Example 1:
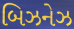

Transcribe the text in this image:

બિઝનેઝ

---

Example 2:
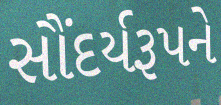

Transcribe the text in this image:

સૌંદર્યરૂપને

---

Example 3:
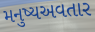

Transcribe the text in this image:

મનુષ્યઅવતાર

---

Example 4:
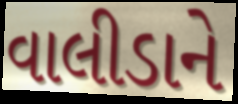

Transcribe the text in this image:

વાલીડાને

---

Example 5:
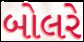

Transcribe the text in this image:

બોલરે